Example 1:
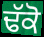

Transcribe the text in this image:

ਢੱਕੋ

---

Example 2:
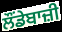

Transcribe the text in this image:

ਲੌਂਡੇਬਾਜ਼ੀ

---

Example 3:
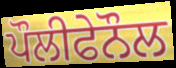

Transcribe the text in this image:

ਪੌਲੀਫੇਨੌਲ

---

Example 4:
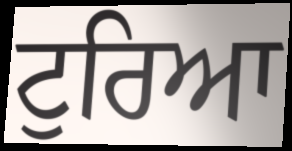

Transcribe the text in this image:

ਟੁਰਿਆ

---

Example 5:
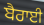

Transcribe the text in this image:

ਬੈਰਾਈ